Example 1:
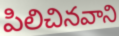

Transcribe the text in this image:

పిలిచినవాని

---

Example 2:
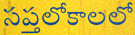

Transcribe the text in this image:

సప్తలోకాలలో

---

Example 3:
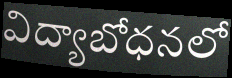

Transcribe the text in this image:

విద్యాబోధనలో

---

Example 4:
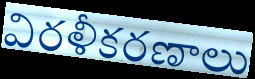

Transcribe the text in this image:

విరళీకరణాలు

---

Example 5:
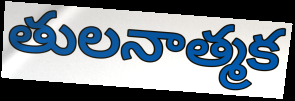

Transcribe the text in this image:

తులనాత్మక